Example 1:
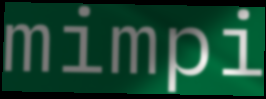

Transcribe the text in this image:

mimpi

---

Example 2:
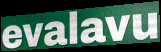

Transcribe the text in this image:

evalavu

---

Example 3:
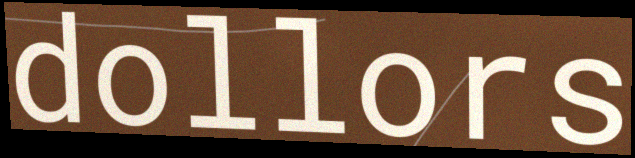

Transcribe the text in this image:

dollors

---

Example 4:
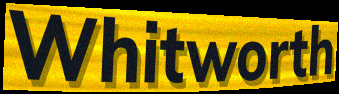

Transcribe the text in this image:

Whitworth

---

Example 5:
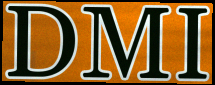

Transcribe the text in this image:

DMI